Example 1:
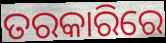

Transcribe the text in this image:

ତରକାରିରେ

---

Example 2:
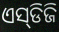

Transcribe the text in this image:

ଏସ୍‌ଡିଜି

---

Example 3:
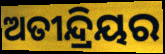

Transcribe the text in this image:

ଅତୀନ୍ଦ୍ରିୟର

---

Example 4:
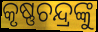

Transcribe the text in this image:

କୃଷ୍ଣଚନ୍ଦ୍ରଙ୍କୁ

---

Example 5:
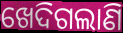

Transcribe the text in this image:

ଖେଦିଗଲାଣି